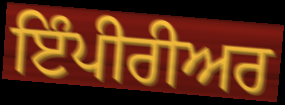
ਇੰਪੀਰੀਅਰ